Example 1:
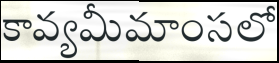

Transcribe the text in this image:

కావ్యమీమాంసలో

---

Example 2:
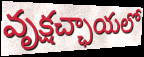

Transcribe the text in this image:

వృక్షచ్ఛాయలో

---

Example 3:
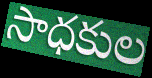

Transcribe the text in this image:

సాధకుల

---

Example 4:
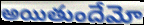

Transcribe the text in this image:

అయితుందేమో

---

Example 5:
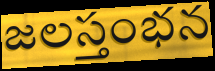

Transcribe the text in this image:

జలస్తంభన